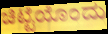
ಚಿಟ್ಟೆಯೊಂದು